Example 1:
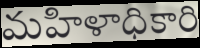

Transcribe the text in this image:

మహిళాధికారి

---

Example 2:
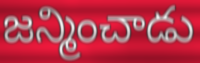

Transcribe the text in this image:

జన్మించాడు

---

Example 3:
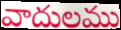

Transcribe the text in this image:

వాదులము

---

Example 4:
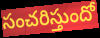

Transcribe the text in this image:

సంచరిస్తుందో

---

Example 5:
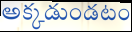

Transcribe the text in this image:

అక్కడుండటం